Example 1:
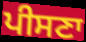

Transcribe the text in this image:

ਪੀਸਣਾ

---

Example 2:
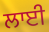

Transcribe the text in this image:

ਲਾਈ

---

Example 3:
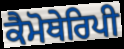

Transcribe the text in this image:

ਕੈਮੋਥੇਰਿਪੀ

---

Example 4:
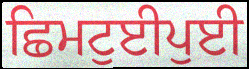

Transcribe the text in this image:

ਛਿਮਟੁਈਪੁਈ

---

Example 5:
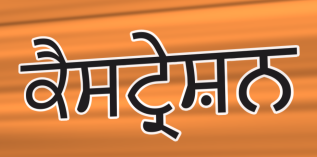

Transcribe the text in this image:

ਕੈਸਟ੍ਰੇਸ਼ਨ